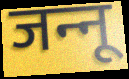
जन्नू